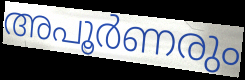
അപൂർണരും